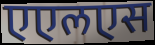
एएलएस